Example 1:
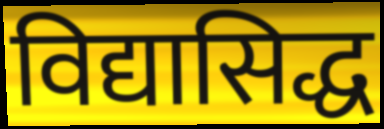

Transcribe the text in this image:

विद्यासिद्ध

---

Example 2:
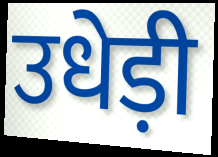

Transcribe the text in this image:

उधेड़ी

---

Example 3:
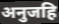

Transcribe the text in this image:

अनुजहि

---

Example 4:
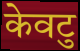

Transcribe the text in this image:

केवटु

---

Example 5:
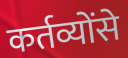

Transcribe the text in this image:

कर्तव्योंसे